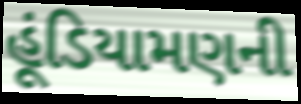
હૂંડિયામણની